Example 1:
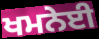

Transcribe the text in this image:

ਖਮਨੇਈ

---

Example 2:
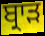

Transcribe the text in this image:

ਬ੍ਰਾੜ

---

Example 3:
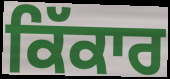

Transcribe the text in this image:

ਕਿੱਕਾਰ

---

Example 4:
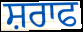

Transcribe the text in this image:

ਸ਼ਰਾਫ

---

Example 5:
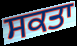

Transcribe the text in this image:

ਸਕਤਾ